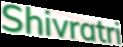
Shivratri